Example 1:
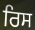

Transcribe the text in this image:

ਰਿਸ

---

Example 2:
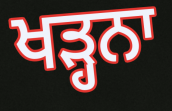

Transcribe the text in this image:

ਖੜ੍ਹਨਾ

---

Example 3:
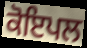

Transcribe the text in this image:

ਕੋਇਪਲ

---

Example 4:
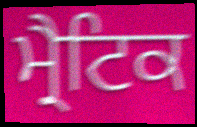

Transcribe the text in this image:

ਮ੍ਰੈਟਿਕ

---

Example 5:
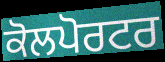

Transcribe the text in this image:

ਕੋਲਪੋਰਟਰ